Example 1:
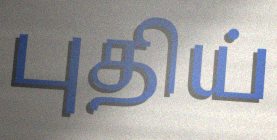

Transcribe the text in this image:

புதிய்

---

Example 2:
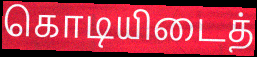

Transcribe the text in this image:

கொடியிடைத்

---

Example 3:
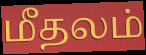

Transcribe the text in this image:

மீதலம்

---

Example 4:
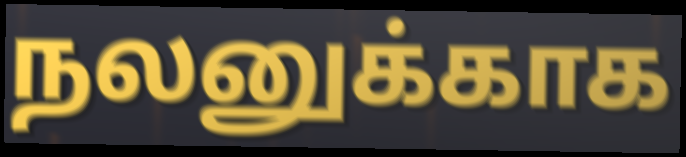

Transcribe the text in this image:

நலனுக்காக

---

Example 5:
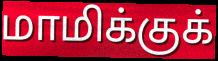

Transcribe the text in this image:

மாமிக்குக்